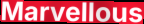
Marvellous